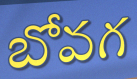
బోవగ